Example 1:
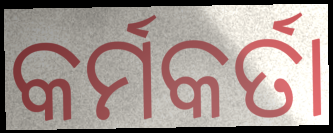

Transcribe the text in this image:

କର୍ମକର୍ତା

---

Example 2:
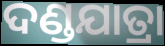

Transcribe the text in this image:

ଦଣ୍ଡଯାତ୍ରା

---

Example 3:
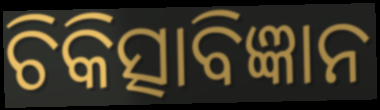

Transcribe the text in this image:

ଚିକିତ୍ସାବିଜ୍ଞାନ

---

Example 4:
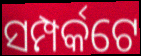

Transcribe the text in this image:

ସମ୍ପର୍କଟେ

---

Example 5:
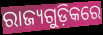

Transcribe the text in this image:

ରାଜ୍ୟଗୁଡ଼ିକରେ